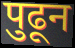
पुढून